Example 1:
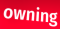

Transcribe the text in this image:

owning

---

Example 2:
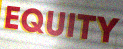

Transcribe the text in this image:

EQUITY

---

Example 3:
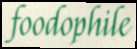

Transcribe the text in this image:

foodophile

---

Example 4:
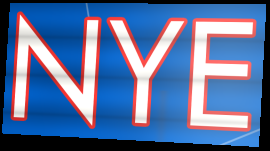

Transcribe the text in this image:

NYE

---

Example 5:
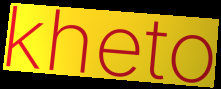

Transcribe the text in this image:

kheto